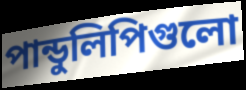
পান্ডুলিপিগুলো